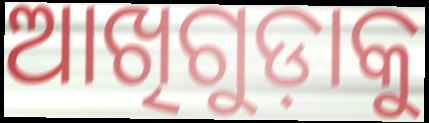
ଆଖିଗୁଡ଼ାକୁ